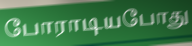
போராடியபோது